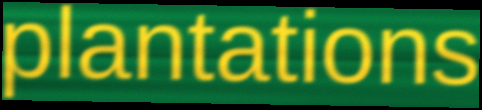
plantations